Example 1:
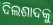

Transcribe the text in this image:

ଦିଲଶାଦକୁ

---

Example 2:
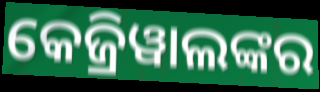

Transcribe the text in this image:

କେଜ୍ରିୱାଲଙ୍କର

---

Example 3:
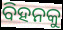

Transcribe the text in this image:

ବିହନକୁ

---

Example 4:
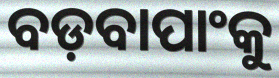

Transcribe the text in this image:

ବଡ଼ବାପାଂକୁ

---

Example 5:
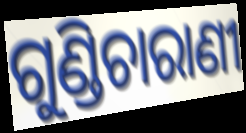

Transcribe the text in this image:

ଗୁଣ୍ଡିଚାରାଣୀ